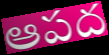
ఆపద